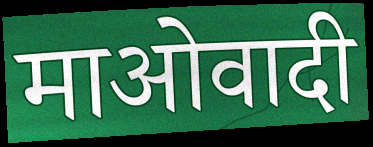
माओवादी